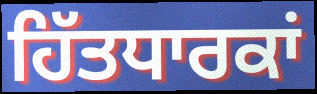
ਹਿੱਤਧਾਰਕਾਂ